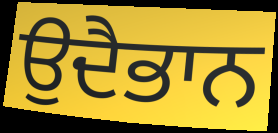
ਉਦੈਭਾਨ